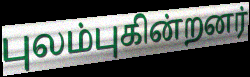
புலம்புகின்றனர்